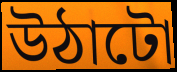
উঠাটো